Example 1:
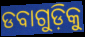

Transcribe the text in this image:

ଡବାଗୁଡ଼ିକୁ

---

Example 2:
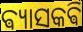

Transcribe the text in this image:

ଵ୍ୟାସକଵି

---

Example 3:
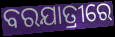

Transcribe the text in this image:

ବରଯାତ୍ରୀରେ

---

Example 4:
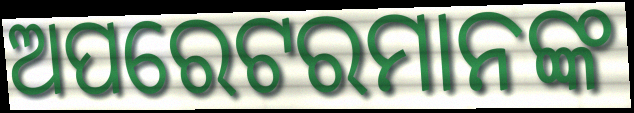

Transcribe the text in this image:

ଅପରେଟରମାନଙ୍କ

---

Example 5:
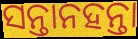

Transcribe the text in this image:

ସନ୍ତାନହନ୍ତା